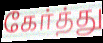
கேர்த்து